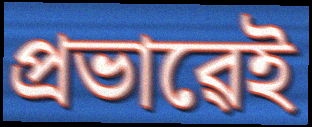
প্ৰভাৱেই